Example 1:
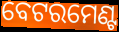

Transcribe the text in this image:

ବେଟରମେଣ୍ଟ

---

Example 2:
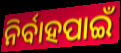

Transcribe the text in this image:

ନିର୍ବାହପାଇଁ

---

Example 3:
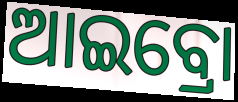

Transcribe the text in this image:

ଆଇବ୍ରୋ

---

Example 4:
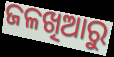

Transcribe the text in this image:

ଜଳଖିଆରୁ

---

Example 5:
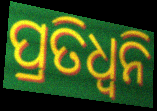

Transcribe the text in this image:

ପ୍ରତିଧ୍ବନି